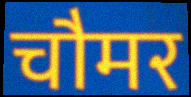
चौमर